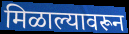
मिळाल्यावरून